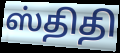
ஸ்திதி